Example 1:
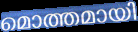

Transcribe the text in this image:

മൊത്തമായി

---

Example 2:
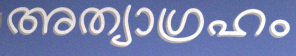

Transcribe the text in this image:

അത്യാഗ്രഹം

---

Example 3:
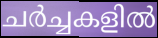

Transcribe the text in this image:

ചർച്ചകളിൽ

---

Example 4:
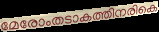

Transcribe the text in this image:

മേരോംതടാകത്തിനരികെ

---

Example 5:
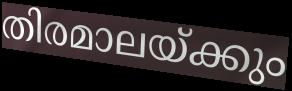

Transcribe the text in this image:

തിരമാലയ്ക്കും